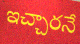
ఇచ్చారనే